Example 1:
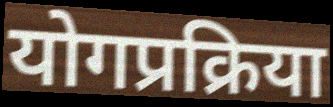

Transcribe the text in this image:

योगप्रक्रिया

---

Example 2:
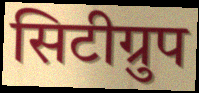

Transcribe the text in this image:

सिटीग्रुप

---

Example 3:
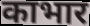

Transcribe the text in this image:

काभार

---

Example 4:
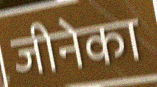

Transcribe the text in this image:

जीनेका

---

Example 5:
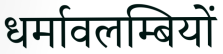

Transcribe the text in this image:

धर्मावलम्बियों